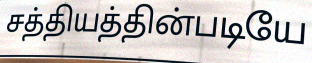
சத்தியத்தின்படியே